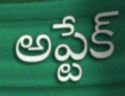
అప్టేక్